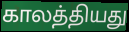
காலத்தியது